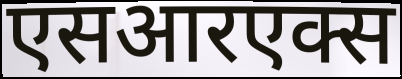
एसआरएक्स